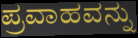
ಪ್ರವಾಹವನ್ನು